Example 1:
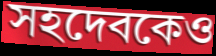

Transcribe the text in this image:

সহদেবকেও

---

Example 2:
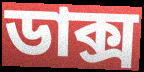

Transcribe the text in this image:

ডাক্স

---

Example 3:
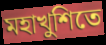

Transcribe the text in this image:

মহাখুশিতে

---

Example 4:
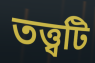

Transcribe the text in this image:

তত্ত্বটি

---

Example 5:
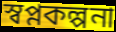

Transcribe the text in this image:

স্বপ্নকল্পনা